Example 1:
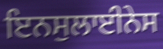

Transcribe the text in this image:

ਇਨਸੁਲਾਈਨੇਸ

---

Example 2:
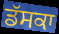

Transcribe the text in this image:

ਡੱਸਕਾ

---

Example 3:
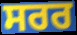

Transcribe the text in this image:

ਸਰਰ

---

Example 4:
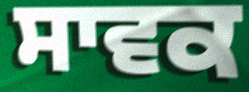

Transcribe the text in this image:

ਸਾਵਕ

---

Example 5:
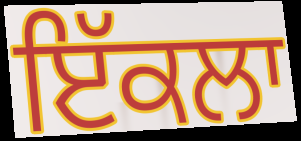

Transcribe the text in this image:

ਇੱਕਲਾ